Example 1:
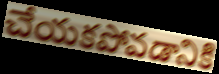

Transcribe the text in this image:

చేయకపోవడానికి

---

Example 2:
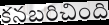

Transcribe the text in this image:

కనబరిచింది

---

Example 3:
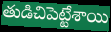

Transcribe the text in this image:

తుడిచిపెట్టేశాయి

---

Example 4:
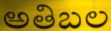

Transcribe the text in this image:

అతిబల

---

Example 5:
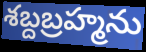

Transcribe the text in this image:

శబ్దబ్రహ్మను